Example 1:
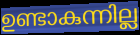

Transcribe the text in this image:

ഉണ്ടാകുന്നില്ല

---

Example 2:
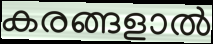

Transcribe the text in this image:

കരങ്ങളാൽ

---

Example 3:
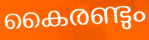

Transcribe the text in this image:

കൈരണ്ടും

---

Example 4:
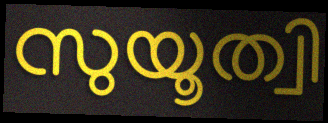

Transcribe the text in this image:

സുയൂത്വി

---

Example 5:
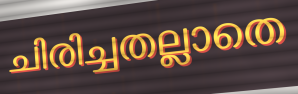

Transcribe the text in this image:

ചിരിച്ചതല്ലാതെ